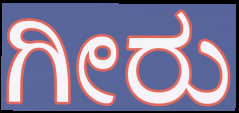
ಗೀರು